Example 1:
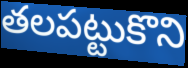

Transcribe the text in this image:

తలపట్టుకొని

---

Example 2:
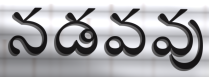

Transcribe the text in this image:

నడవవు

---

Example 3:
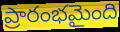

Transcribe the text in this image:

ప్రారంభమైంది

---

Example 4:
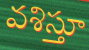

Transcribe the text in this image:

వశిస్తూ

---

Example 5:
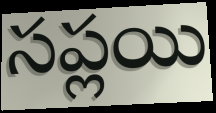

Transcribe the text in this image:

సప్లయి